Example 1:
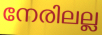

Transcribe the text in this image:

നേരിലല്ല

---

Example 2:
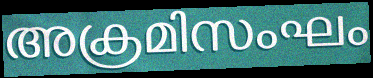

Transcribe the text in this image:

അക്രമിസംഘം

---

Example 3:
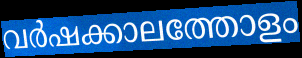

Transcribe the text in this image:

വർഷക്കാലത്തോളം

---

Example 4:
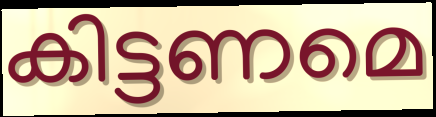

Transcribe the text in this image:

കിട്ടണമെ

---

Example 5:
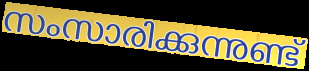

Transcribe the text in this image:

സംസാരിക്കുന്നുണ്ട്